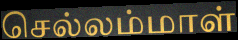
செல்லம்மாள்